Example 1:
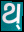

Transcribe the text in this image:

ଥ୍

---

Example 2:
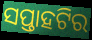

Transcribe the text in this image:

ସପ୍ତାହଟିର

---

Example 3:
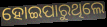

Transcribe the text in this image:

ହୋଇପାରୁଥିଲେ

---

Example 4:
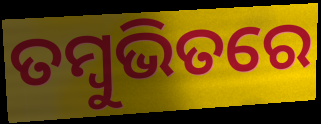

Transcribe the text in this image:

ତମ୍ବୁଭିତରେ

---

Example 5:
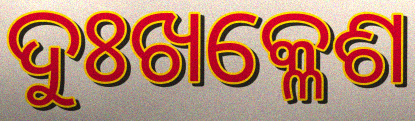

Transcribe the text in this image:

ଦୁଃଖକ୍ଳେଶ